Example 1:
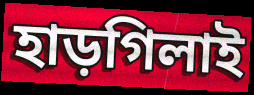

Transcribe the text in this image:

হাড়গিলাই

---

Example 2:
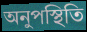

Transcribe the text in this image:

অনুপস্থিতি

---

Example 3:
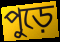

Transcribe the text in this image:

পুড়ে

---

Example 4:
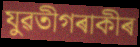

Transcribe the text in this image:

যুৱতীগৰাকীৰ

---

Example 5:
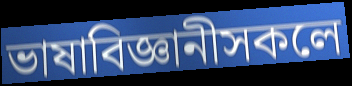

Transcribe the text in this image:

ভাষাবিজ্ঞানীসকলে